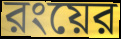
রংয়ের